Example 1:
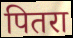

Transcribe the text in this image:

पितरा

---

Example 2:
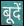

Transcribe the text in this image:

बूदें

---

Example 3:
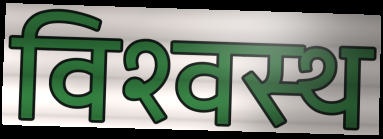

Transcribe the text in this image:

विश्वस्थ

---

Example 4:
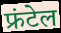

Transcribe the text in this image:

फ्रंटेल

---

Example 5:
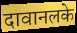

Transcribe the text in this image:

दावानलके